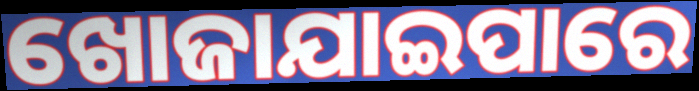
ଖୋଜାଯାଇପାରେ